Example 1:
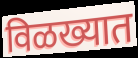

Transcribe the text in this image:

विळख्यात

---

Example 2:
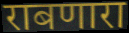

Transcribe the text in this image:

राबणारा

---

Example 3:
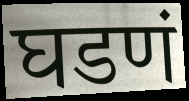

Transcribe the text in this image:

घडणं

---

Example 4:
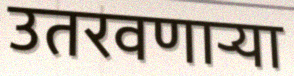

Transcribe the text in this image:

उतरवणाऱ्या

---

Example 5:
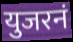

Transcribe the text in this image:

युजरनं